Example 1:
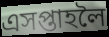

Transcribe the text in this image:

এসপ্তাহলৈ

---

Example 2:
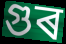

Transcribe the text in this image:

গুৰ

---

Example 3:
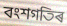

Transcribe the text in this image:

বংশগতিৰ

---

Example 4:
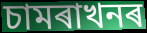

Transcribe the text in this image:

চামৰাখনৰ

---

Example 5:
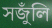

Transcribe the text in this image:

সজুঁলি